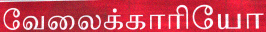
வேலைக்காரியோ